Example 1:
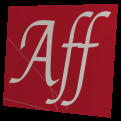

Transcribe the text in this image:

Aff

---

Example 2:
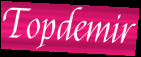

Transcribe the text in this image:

Topdemir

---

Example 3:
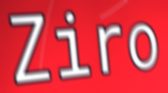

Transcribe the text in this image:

Ziro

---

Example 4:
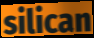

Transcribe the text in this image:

silican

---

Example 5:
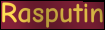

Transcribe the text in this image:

Rasputin